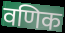
वणिक